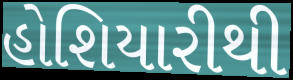
હોશિયારીથી